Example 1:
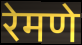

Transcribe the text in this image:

रेमणे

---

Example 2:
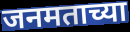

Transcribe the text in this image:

जनमताच्या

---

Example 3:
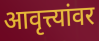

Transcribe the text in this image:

आवृत्त्यांवर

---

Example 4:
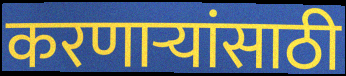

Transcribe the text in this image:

करणार्‍यांसाठी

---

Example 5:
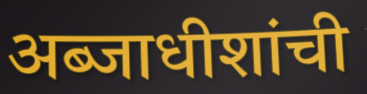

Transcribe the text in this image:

अब्जाधीशांची